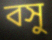
বসু